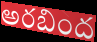
అరబింద